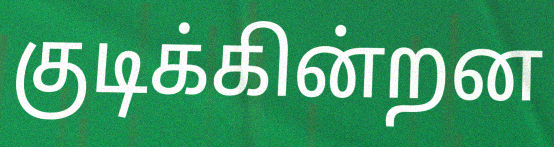
குடிக்கின்றன